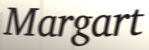
Margart